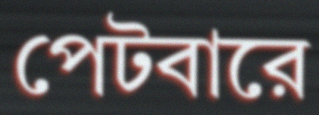
পেটবারে